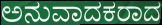
ಅನುವಾದಕರಾದ